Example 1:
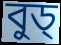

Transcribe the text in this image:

বুড্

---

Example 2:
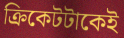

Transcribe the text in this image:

ক্রিকেটটাকেই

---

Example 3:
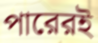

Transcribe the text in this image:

পারেরই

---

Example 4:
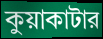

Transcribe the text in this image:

কুয়াকাটার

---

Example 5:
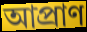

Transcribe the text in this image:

আপ্রাণ